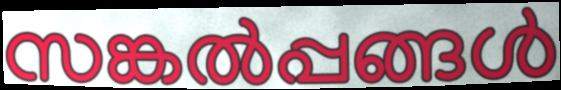
സങ്കൽപ്പങ്ങൾ